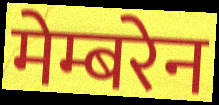
मेम्बरेन